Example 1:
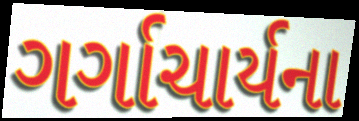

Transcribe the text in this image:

ગર્ગાચાર્યના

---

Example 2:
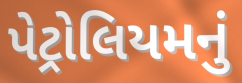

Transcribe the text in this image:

પેટ્રોલિયમનું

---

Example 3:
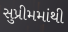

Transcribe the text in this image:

સુપ્રીમમાંથી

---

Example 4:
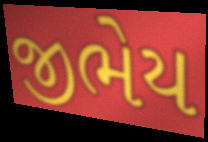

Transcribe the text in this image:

જીભેય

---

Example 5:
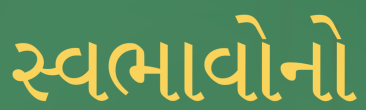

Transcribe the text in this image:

સ્વભાવોનો